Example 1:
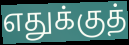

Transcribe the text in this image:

எதுக்குத்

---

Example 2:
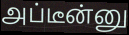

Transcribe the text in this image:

அப்டீன்னு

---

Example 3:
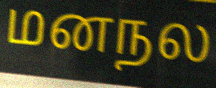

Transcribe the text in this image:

மனநல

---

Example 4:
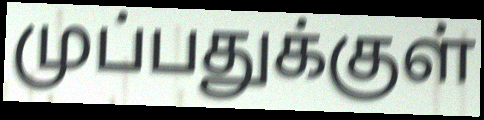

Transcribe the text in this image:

முப்பதுக்குள்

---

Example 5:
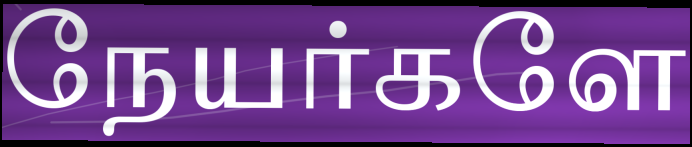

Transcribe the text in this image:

நேயர்களே